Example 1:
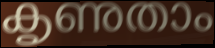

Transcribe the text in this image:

കൃണുതാം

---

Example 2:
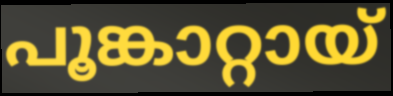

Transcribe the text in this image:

പൂങ്കാറ്റായ്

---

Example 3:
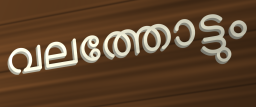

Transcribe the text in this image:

വലത്തോട്ടും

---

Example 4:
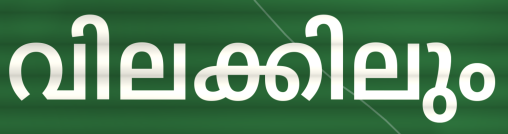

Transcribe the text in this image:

വിലക്കിലും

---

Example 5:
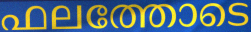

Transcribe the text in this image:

ഫലത്തോടെ